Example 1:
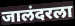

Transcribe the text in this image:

जालंदरला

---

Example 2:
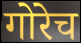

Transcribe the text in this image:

गोरेच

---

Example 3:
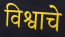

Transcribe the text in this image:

विश्वाचे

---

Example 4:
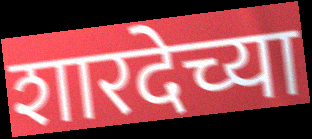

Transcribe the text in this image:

शारदेच्या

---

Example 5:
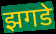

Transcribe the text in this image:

झगडे